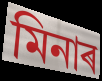
মিনাৰ